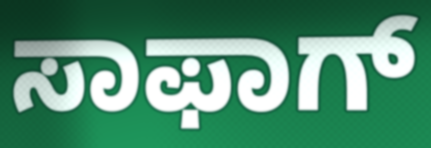
ಸಾಫಾಗ್